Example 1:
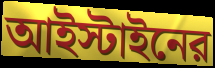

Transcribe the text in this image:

আইস্টাইনের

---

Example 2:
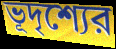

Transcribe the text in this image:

ভূদৃশ্যের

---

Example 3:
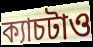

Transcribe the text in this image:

ক্যাচটাও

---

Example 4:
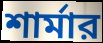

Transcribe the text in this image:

শার্মার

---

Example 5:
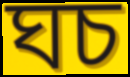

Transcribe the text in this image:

ঘচ